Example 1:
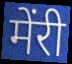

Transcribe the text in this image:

मेंरी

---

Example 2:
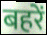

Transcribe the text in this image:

बहरें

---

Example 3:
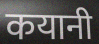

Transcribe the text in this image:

कयानी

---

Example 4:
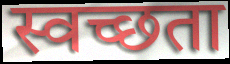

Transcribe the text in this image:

स्वच्छता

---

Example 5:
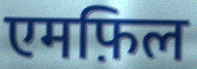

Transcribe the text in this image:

एमफ़िल